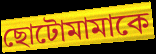
ছোটোমামাকে